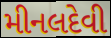
મીનલદેવી